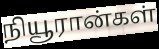
நியூரான்கள்